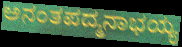
ಅನಂತಪದ್ಮನಾಭಯ್ಯ